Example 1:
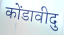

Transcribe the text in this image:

कोंडावीदु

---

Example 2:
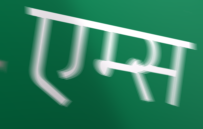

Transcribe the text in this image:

एम्‍स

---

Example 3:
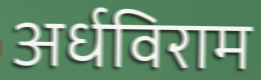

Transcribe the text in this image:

अर्धविराम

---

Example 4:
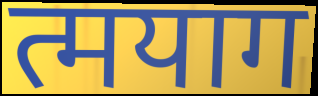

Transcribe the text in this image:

त्मयाग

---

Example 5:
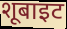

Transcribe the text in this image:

शूबाइट